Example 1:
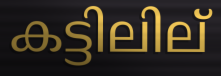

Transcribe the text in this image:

കട്ടിലില്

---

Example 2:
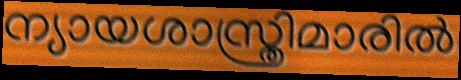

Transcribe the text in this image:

ന്യായശാസ്ത്രിമാരിൽ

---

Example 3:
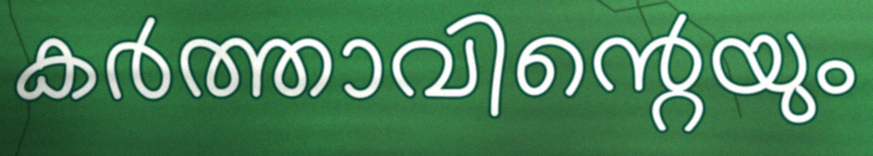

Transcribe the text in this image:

കർത്താവിന്റെയും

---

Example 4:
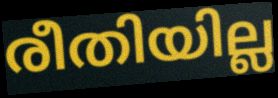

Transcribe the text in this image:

രീതിയില്ല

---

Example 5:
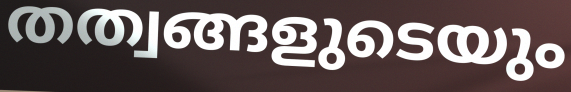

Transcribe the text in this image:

തത്വങ്ങളുടെയും